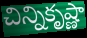
చిన్నికృష్ణా